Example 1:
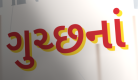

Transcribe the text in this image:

ગુચ્છનાં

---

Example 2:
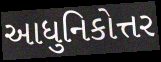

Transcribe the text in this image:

આધુનિકોત્તર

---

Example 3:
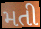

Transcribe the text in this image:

મતી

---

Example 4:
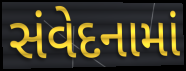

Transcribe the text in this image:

સંવેદનામાં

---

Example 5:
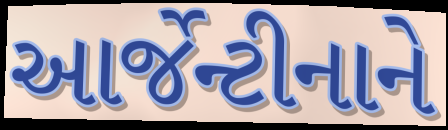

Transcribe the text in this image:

આર્જેન્ટીનાને